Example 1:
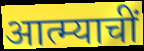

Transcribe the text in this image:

आत्म्याचीं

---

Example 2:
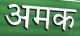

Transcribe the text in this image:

अमक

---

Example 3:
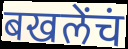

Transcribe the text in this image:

बखलेंचं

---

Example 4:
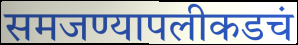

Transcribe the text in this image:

समजण्यापलीकडचं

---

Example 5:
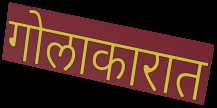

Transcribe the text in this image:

गोलाकारात